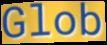
Glob